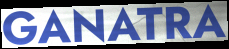
GANATRA